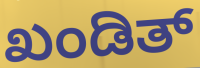
ಖಂಡಿತ್